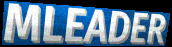
MLEADER